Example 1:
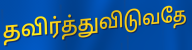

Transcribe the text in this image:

தவிர்த்துவிடுவதே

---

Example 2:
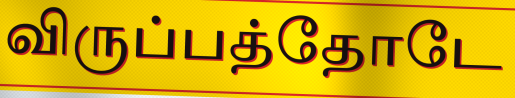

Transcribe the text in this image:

விருப்பத்தோடே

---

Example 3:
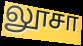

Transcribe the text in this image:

லூசா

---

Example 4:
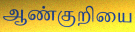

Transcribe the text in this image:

ஆண்குறியை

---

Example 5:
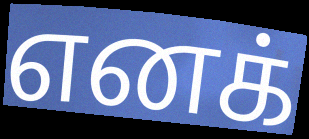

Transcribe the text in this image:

எனக்